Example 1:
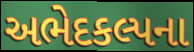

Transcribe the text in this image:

અભેદકલ્પના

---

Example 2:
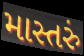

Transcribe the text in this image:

માસ્તરું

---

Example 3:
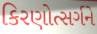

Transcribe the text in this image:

કિરણોત્સર્ગને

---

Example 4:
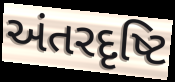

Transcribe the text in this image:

અંતરદૃષ્ટિ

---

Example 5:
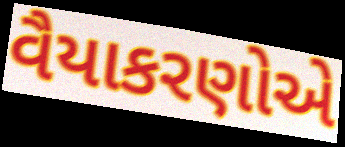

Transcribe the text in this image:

વૈયાકરણોએ